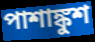
পাশাঙ্কুশ